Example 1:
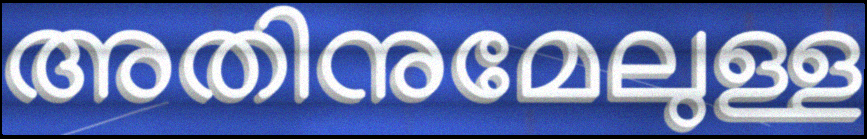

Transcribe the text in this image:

അതിനുമേലുള്ള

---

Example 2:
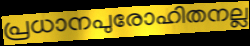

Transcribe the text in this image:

പ്രധാനപുരോഹിതനല്ല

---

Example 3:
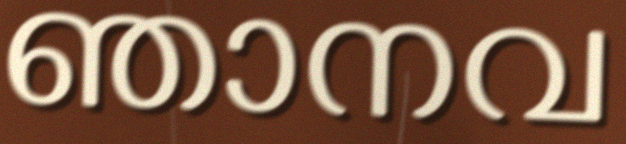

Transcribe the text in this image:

ഞാനവ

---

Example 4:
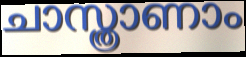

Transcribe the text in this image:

ചാസ്ത്രാണാം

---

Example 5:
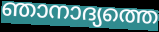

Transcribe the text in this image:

ഞാനാദ്യത്തെ